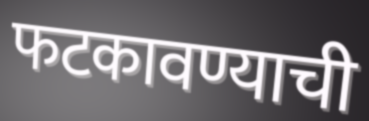
फटकावण्याची